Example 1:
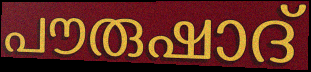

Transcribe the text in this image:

പൗരുഷാദ്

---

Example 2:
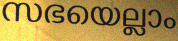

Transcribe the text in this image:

സഭയെല്ലാം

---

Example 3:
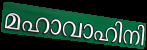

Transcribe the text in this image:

മഹാവാഹിനി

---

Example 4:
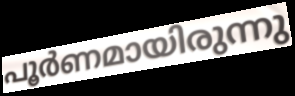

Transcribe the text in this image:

പൂർണമായിരുന്നു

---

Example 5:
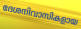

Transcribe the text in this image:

ദേശനിവാസികളായ